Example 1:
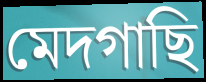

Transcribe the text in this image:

মেদগাছি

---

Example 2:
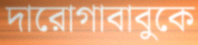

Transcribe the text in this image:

দারোগাবাবুকে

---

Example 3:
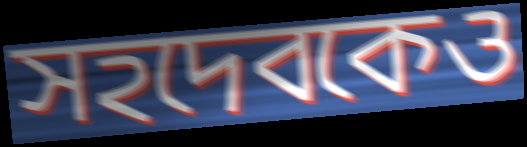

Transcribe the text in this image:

সহদেবকেও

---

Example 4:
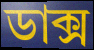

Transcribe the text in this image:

ডাক্স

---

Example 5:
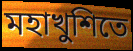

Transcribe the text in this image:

মহাখুশিতে